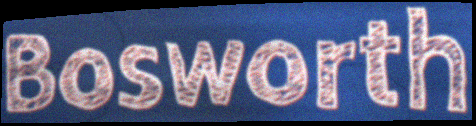
Bosworth